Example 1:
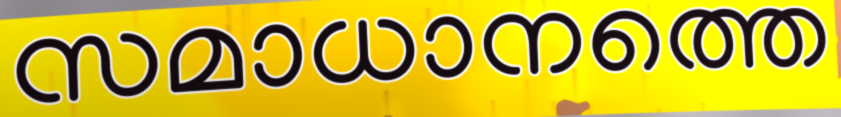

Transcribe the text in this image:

സമാധാനത്തെ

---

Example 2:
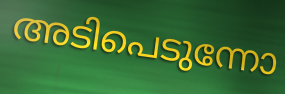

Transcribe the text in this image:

അടിപെടുന്നോ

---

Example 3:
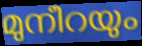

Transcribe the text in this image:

മുനീറയും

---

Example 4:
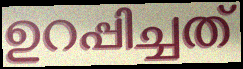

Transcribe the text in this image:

ഉറപ്പിച്ചത്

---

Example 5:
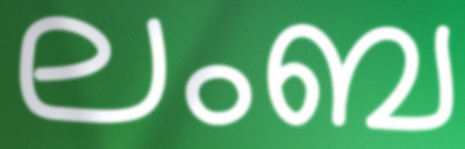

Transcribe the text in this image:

ലംബ